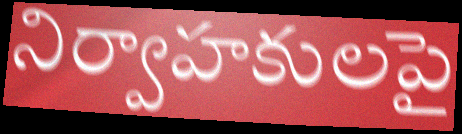
నిర్వాహకులపై